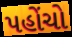
પહોંચો